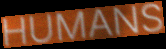
HUMANS